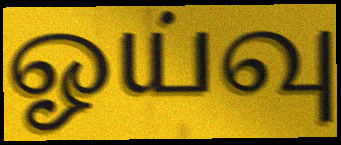
ஓய்வு